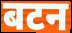
बटन